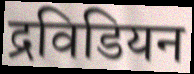
द्रविडियन